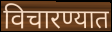
विचारण्यात